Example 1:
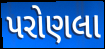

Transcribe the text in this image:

પરોણલા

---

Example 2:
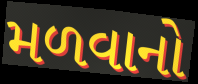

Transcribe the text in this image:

મળવાનો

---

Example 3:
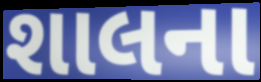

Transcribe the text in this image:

શાલના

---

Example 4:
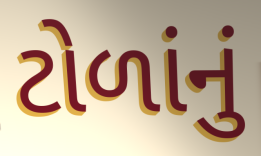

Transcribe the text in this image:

ટોળાંનું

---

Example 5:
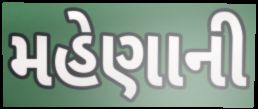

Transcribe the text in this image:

મહેણાની